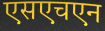
एसएचएन